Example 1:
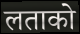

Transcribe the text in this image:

लताको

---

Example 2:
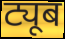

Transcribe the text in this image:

ट्यूब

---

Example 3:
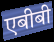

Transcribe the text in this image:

एबीबी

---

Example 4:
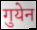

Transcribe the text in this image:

गुयेन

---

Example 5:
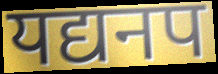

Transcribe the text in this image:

यद्यनप